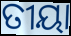
ତୀୟା